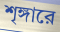
শৃঙ্গারে